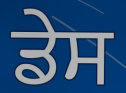
ਡੇਸ